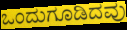
ಒಂದುಗೂಡಿದವು